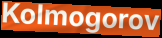
Kolmogorov